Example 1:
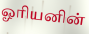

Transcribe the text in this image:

ஓரியனின்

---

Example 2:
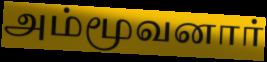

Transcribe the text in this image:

அம்மூவனார்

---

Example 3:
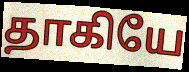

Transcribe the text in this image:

தாகியே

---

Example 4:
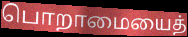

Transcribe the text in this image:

பொறாமையைத்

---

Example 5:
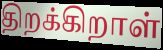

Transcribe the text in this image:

திறக்கிறாள்